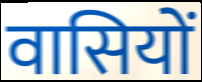
वासियों